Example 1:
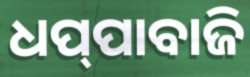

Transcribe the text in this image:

ଧପ୍‌ପାବାଜି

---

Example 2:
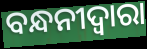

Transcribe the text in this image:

ବନ୍ଧନୀଦ୍ୱାରା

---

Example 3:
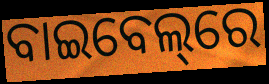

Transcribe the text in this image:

ବାଇବେଲ୍‌ରେ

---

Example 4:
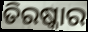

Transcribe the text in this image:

ତିରଷ୍କାର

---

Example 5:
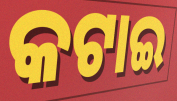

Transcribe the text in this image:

କଟାଇ